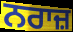
ਨਰਾਜ਼